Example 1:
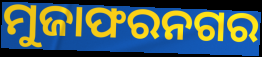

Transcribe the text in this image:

ମୁଜାଫରନଗର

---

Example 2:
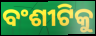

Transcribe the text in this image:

ବଂଶୀଟିକୁ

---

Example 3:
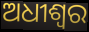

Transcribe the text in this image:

ଅଧୀଶ୍ୱର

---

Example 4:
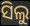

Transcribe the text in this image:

ସିଲୁ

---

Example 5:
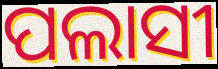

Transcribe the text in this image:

ପଲାସୀ